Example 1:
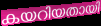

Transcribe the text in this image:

കയറിയതായി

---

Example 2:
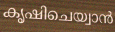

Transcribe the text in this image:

കൃഷിചെയ്വാൻ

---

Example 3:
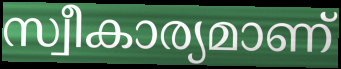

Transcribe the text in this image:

സ്വീകാര്യമാണ്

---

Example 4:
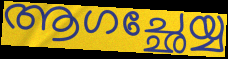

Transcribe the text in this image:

ആഗച്ഛേയ്യ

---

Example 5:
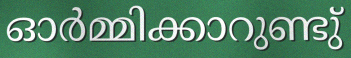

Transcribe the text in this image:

ഓർമ്മിക്കാറുണ്ടു്